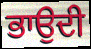
ਭਾਉਦੀ